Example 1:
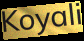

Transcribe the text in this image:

Koyali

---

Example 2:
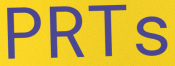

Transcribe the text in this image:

PRTs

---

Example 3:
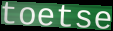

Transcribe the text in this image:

toetse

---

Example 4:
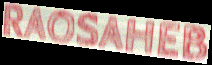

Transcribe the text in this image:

RAOSAHEB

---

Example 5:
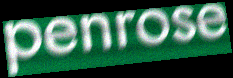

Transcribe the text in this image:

penrose